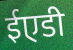
ईएडी